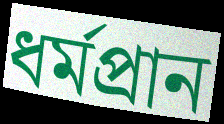
ধর্মপ্রান